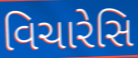
વિચારેસિ